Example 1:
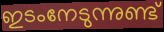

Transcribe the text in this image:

ഇടംനേടുന്നുണ്ട്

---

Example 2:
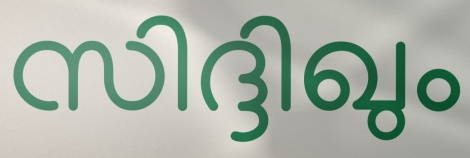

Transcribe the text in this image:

സിദ്ദിഖും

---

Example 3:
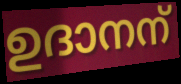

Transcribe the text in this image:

ഉദാനന്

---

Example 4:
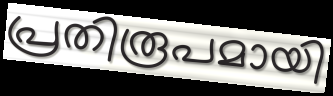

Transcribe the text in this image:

പ്രതിരൂപമായി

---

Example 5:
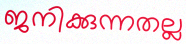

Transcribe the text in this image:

ജനിക്കുന്നതല്ല